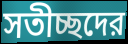
সতীচ্ছদের